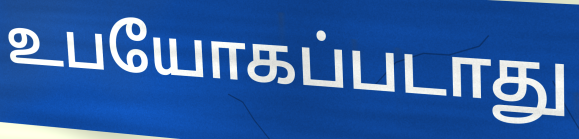
உபயோகப்படாது